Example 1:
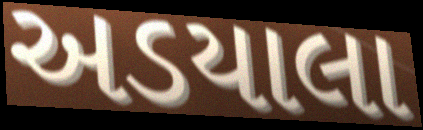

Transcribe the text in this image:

અડયાલા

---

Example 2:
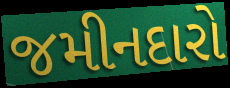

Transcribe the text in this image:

જમીનદારો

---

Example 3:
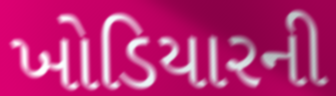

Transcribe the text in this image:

ખોડિયારની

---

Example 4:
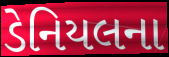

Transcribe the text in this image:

ડેનિયલના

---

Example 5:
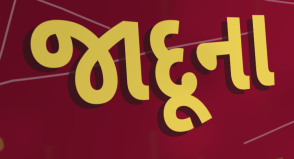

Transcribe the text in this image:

જાદૂના